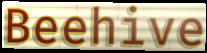
Beehive